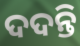
ଦଦନ୍ତି